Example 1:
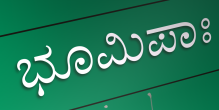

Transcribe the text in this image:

ಭೂಮಿಪಾಃ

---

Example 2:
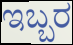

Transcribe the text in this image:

ಇಬ್ಬರ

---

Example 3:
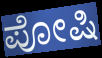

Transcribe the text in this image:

ಪೋಷಿ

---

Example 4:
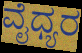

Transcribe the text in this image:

ವೈಧ್ಯರ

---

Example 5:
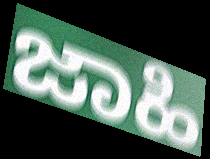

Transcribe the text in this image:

ಜಾಹಿ